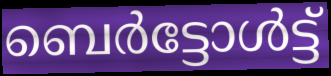
ബെർട്ടോൾട്ട്